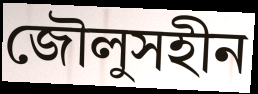
জৌলুসহীন